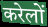
करेलों